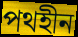
পথহীন